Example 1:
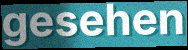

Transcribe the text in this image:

gesehen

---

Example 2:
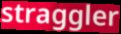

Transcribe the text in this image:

straggler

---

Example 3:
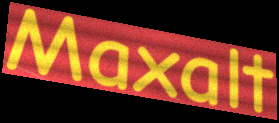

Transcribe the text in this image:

Maxalt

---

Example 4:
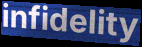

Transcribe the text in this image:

infidelity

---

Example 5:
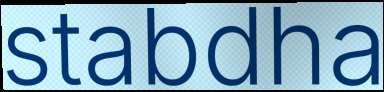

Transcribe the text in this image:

stabdha